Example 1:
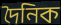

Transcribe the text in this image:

দৈনিক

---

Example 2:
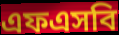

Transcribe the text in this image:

এফএসবি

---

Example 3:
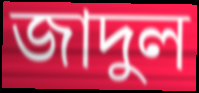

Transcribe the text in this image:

জাদুল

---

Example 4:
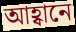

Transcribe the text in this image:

আহ্বানে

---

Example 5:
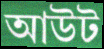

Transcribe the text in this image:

আউট